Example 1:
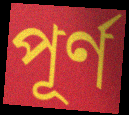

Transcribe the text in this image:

পূৰ্ণ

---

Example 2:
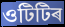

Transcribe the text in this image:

ওটিটিৰ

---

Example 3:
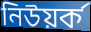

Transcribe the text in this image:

নিউয়ৰ্ক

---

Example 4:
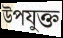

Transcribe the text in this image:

উপযুক্ত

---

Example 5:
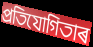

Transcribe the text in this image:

প্ৰতিযোগিতাৰ